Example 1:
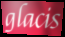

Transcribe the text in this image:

glacis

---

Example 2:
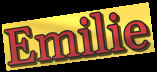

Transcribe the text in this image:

Emilie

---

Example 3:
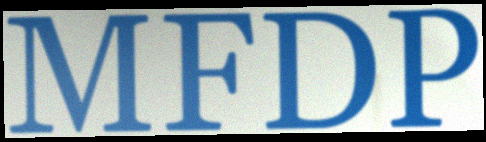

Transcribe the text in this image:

MFDP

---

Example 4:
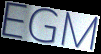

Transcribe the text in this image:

EGM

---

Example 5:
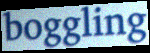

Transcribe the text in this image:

boggling